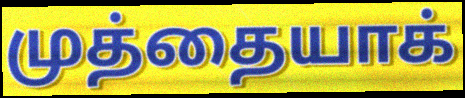
முத்தையாக்